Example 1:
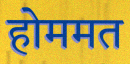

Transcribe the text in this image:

होममत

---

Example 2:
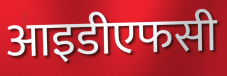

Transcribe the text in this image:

आइडीएफसी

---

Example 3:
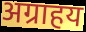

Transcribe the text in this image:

अग्राहय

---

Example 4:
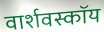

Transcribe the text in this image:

वार्शवस्कॉय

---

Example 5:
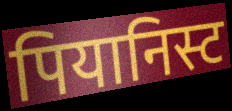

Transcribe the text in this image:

पियानिस्ट